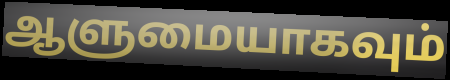
ஆளுமையாகவும்